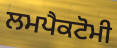
ਲਮਪੈਕਟੋਮੀ